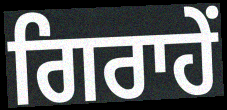
ਗਿਰਾਹੇਂ